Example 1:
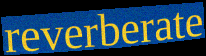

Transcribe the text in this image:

reverberate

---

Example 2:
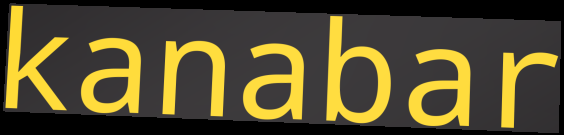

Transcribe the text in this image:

kanabar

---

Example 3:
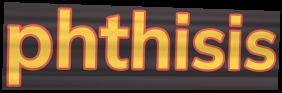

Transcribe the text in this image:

phthisis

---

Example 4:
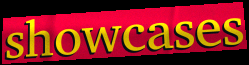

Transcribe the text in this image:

showcases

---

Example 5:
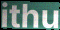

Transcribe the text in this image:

ithu